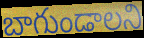
బాగుండాలని